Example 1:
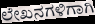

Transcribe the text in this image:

ಲೇಖನಗಳಿಗಾಗಿ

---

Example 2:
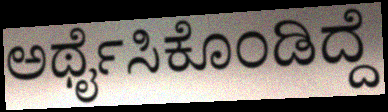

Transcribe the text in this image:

ಅರ್ಥೈಸಿಕೊಂಡಿದ್ದೆ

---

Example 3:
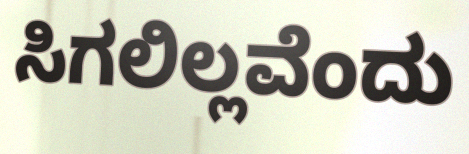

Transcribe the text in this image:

ಸಿಗಲಿಲ್ಲವೆಂದು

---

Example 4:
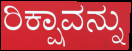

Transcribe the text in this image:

ರಿಕ್ಷಾವನ್ನು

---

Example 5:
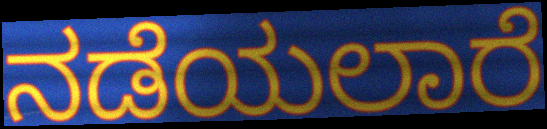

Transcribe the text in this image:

ನಡೆಯಲಾರೆ